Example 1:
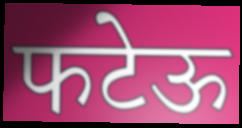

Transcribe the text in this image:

फटेऊ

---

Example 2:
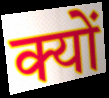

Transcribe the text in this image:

क्यों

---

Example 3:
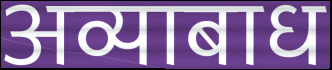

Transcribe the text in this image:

अव्याबाध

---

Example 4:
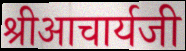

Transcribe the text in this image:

श्रीआचार्यजी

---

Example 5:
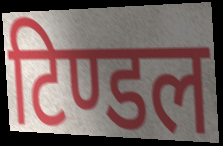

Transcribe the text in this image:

टिण्डल